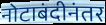
नोटाबंदीनंतर